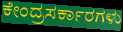
ಕೇಂದ್ರಸರ್ಕಾರಗಳು